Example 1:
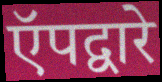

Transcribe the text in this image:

ऍपद्वारे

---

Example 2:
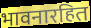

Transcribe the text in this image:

भावनारहित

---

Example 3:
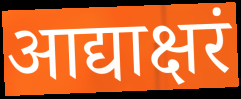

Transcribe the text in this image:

आद्याक्षरं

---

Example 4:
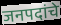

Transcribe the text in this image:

जनपदांचे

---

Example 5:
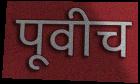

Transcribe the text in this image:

पूवीच